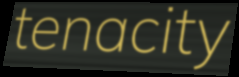
tenacity